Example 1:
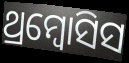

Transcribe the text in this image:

ଥ୍ରମ୍ବୋସିସ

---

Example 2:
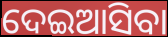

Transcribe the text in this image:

ଦେଇଆସିବା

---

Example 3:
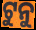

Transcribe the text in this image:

ଟୁନୁ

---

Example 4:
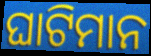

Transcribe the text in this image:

ଘାଟିମାନ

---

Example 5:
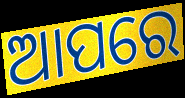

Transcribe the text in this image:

ଆପରେ